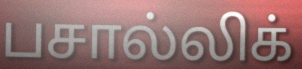
பசால்லிக்